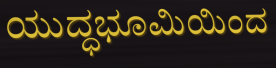
ಯುದ್ಧಭೂಮಿಯಿಂದ